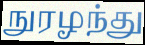
நுரழந்து